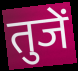
तुजें